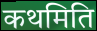
कथमिति